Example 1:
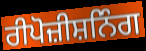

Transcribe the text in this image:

ਰੀਪੋਜ਼ੀਸ਼ਨਿੰਗ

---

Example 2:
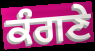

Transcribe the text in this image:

ਕੰਗਣੇ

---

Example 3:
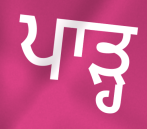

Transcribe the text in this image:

ਪਾੜ੍ਹ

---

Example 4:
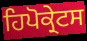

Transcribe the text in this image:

ਹਿਪੋਕ੍ਰੇਟਸ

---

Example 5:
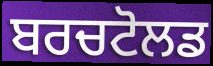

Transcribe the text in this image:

ਬਰਚਟੋਲਡ